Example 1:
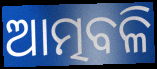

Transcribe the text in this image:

ଆତ୍ମବଳି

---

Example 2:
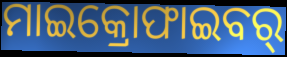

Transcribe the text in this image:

ମାଇକ୍ରୋଫାଇବର୍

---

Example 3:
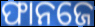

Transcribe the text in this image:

ଫାନଜେ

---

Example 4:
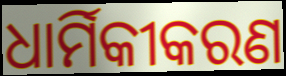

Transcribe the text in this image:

ଧାର୍ମିକୀକରଣ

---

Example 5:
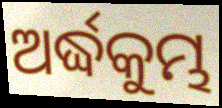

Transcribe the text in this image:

ଅର୍ଦ୍ଧକୁମ୍ଭ